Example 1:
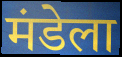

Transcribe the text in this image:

मंडेला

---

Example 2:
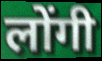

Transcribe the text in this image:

लोंगी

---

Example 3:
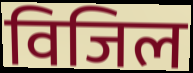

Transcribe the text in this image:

विजिल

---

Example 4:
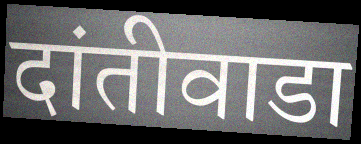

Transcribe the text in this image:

दांतीवाडा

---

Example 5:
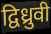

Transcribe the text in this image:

द्विध्रुवी